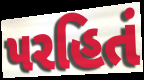
પરહિતં